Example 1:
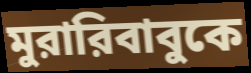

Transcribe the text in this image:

মুরারিবাবুকে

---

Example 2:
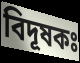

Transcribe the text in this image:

বিদূষকঃ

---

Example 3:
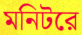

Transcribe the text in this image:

মনিটরে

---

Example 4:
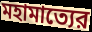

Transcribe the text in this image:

মহামাত্যের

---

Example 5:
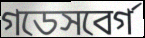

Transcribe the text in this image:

গডেসবের্গ